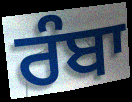
ਰੰਬਾ